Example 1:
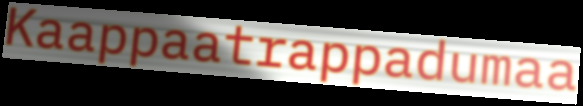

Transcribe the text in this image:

Kaappaatrappadumaa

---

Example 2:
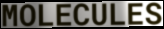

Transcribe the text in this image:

MOLECULES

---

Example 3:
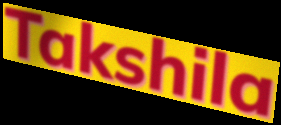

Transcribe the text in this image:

Takshila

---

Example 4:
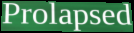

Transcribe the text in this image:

Prolapsed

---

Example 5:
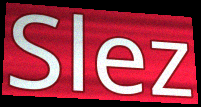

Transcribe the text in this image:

Slez